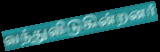
வந்துவிடுகின்றனர்